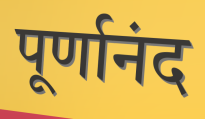
पूर्णानंद